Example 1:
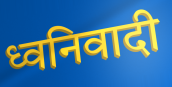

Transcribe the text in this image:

ध्वनिवादी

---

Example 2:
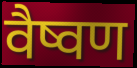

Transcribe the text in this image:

वैष्वण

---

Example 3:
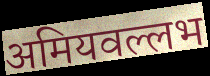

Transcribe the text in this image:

अमियवल्लभ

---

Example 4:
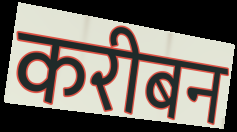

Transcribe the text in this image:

करीबन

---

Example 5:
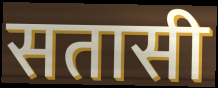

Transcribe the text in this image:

सतासी